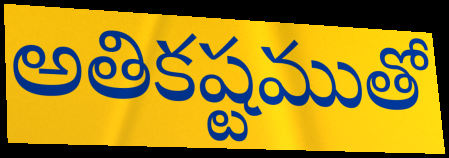
అతికష్టముతో